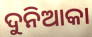
ଦୁନିଆକା